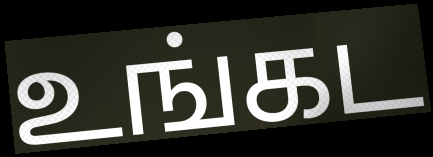
உங்கட